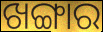
ଖଙ୍ଗାର